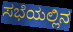
ಸಭೆಯಲ್ಲಿನ